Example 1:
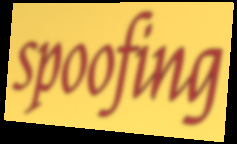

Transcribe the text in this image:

spoofing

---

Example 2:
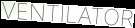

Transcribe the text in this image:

VENTILATOR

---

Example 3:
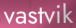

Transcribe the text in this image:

vastvik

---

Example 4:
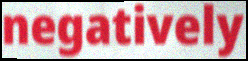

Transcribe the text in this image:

negatively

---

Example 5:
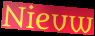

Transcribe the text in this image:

Nieuw